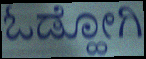
ಓಡ್ಹೋಗಿ